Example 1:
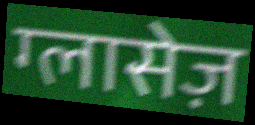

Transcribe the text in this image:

ग्लासेज़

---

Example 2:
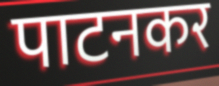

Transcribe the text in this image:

पाटनकर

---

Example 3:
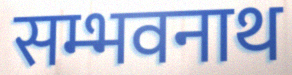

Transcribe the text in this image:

सम्भवनाथ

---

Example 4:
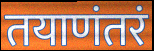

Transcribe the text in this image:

तयाणंतरं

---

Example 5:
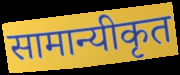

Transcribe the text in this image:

सामान्यीकृत